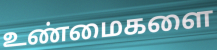
உண்மைகளை